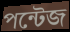
পন্টেজ